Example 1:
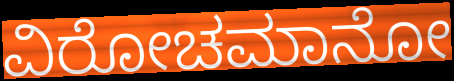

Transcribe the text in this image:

ವಿರೋಚಮಾನೋ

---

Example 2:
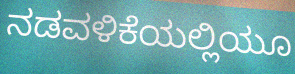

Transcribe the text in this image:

ನಡವಳಿಕೆಯಲ್ಲಿಯೂ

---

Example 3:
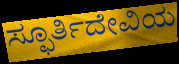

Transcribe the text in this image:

ಸ್ಫೂರ್ತಿದೇವಿಯ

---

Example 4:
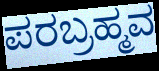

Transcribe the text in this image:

ಪರಬ್ರಹ್ಮವ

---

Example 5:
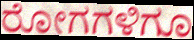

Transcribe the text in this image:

ರೋಗಗಳಿಗೂ